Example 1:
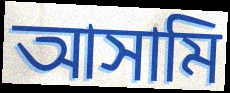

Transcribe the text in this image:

আসামি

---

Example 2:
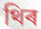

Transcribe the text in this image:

থিৰ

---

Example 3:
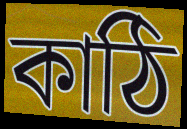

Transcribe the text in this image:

কাঠি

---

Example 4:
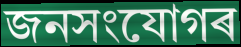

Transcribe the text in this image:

জনসংযোগৰ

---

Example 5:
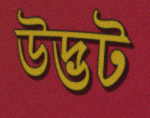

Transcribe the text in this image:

উদ্ভট